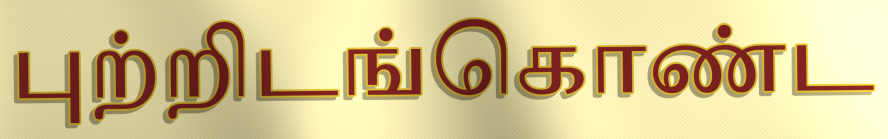
புற்றிடங்கொண்ட